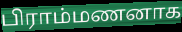
பிராம்மணனாக